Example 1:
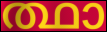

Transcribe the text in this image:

ത്ഥാ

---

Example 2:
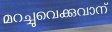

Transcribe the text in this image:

മറച്ചുവെക്കുവാന്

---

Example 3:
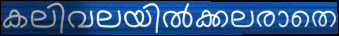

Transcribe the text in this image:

കലിവലയിൽക്കലരാതെ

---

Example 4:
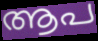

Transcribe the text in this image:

ആപ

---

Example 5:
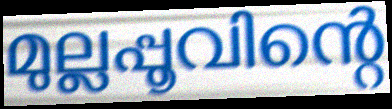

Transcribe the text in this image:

മുല്ലപ്പൂവിന്റെ